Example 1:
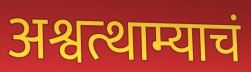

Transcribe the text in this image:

अश्वत्थाम्याचं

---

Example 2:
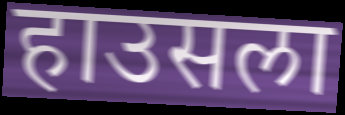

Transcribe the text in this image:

हाउसला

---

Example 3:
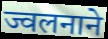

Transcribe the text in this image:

ज्वलनाने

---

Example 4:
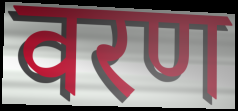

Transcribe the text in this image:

वरण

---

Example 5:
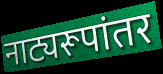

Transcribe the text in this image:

नाट्यरूपांतर